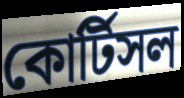
কোর্টিসল